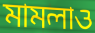
মামলাও